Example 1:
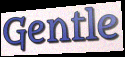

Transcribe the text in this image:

Gentle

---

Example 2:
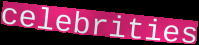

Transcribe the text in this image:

celebrities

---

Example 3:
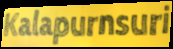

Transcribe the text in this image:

Kalapurnsuri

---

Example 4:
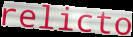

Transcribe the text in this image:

relicto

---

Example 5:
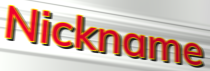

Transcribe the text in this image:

Nickname